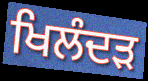
ਖਿਲੰਦੜ